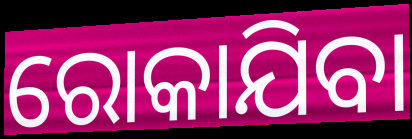
ରୋକାଯିବା